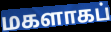
மகளாகப்